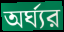
অর্ঘ্যর